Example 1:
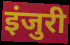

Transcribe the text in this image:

इंजुरी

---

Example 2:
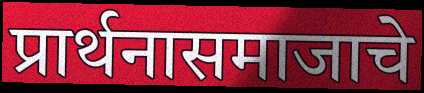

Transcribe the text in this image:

प्रार्थनासमाजाचे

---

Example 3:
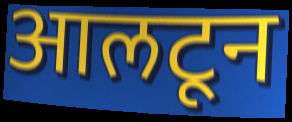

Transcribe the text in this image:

आलटून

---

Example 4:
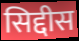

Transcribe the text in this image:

सिद्दीस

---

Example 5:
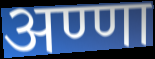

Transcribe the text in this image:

अण्णा